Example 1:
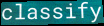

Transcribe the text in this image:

classify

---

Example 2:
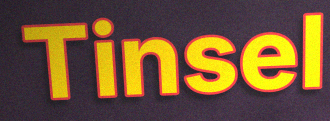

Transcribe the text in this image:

Tinsel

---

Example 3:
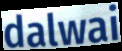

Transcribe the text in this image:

dalwai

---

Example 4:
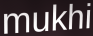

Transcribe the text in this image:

mukhi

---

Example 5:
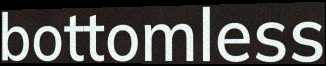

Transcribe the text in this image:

bottomless